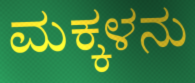
ಮಕ್ಕಳನು